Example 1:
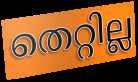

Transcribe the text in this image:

തെറ്റില്ല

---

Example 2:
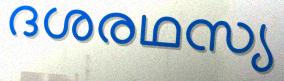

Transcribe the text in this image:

ദശരഥസ്യ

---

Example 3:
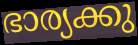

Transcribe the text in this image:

ഭാര്യക്കു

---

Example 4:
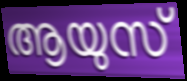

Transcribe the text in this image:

ആയുസ്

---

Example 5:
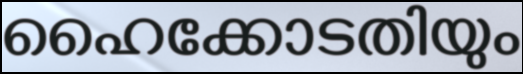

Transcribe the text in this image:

ഹൈക്കോടതിയും